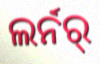
ଲର୍ନର୍